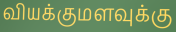
வியக்குமளவுக்கு